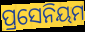
ପ୍ରସେନିୟମ